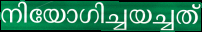
നിയോഗിച്ചയച്ചത്